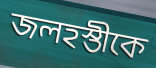
জলহস্তীকে